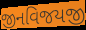
જીનવિજયજી